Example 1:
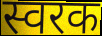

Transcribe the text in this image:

स्वरक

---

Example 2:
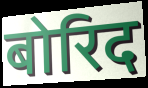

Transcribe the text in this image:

बोरिद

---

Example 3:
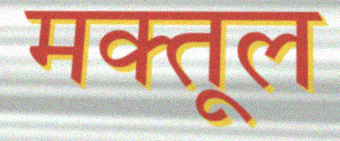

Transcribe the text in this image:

मक्तूल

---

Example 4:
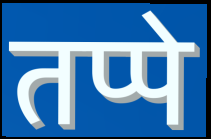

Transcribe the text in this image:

तप्पे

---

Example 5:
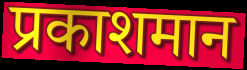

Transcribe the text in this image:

प्रकाशमान